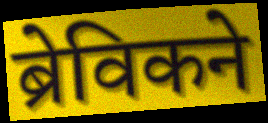
ब्रेविकने